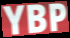
YBP